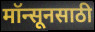
मॉन्सूनसाठी